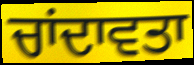
ਚਾਂਦਾਵਤਾ